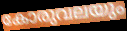
കോരുവലയും